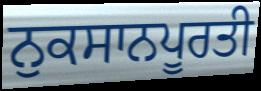
ਨੁਕਸਾਨਪੂਰਤੀ